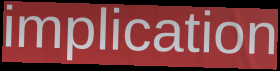
implication